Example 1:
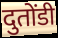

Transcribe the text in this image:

दुतोंडी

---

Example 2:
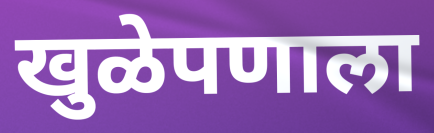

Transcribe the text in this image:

खुळेपणाला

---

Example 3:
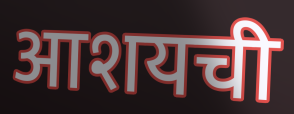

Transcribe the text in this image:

आशयची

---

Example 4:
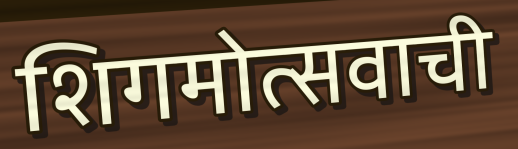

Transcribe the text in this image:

शिगमोत्सवाची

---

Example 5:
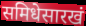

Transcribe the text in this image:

समिधेसारखं